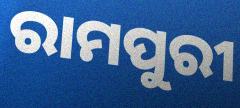
ରାମପୁରୀ